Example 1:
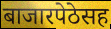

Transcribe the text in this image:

बाजारपेठेसह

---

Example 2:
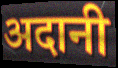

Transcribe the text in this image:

अदानी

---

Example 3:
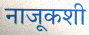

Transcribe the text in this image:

नाजूकशी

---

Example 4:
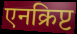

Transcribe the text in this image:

एनक्रिप्ट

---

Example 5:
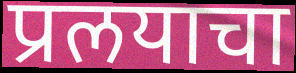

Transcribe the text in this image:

प्रलयाचा